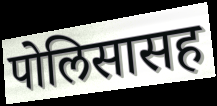
पोलिसासह